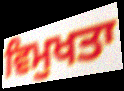
ਵਿਮੁਖਤਾ